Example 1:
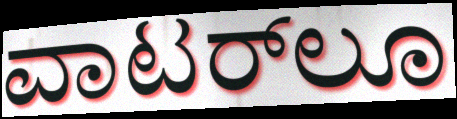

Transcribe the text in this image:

ವಾಟರ್‌ಲೂ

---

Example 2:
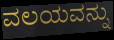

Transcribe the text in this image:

ವಲಯವನ್ನು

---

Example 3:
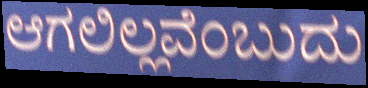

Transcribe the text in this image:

ಆಗಲಿಲ್ಲವೆಂಬುದು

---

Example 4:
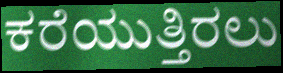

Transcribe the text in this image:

ಕರೆಯುತ್ತಿರಲು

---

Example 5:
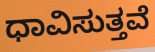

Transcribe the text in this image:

ಧಾವಿಸುತ್ತವೆ